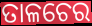
ତାଳଚେର